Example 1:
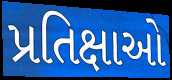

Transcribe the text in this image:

પ્રતિક્ષાઓ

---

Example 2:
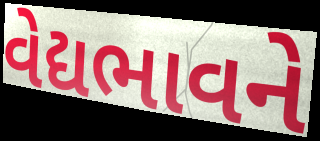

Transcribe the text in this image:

વેદ્યભાવને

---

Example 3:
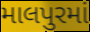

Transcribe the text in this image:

માલપુરમાં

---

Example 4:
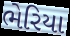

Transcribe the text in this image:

ભેરિયા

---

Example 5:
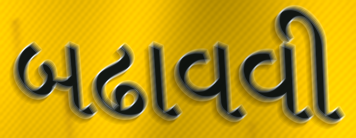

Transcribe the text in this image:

બઢાવવી